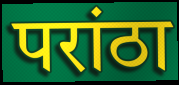
परांठा